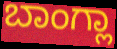
ಬಾಂಗ್ಲಾ